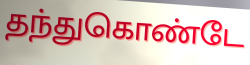
தந்துகொண்டே